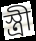
স্ত্ৰী